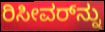
ರಿಸೀವರ್‌ನ್ನು